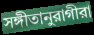
সঙ্গীতানুরাগীরা